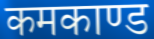
कमकाण्ड